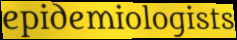
epidemiologists